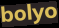
bolyo